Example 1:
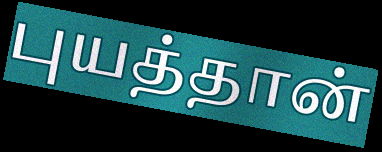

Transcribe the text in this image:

புயத்தான்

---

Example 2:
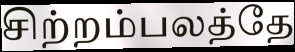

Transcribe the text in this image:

சிற்றம்பலத்தே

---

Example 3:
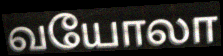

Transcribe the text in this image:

வயோலா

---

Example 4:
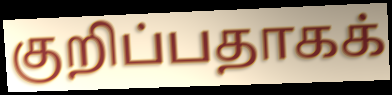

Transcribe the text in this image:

குறிப்பதாகக்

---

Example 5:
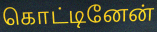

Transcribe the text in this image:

கொட்டினேன்